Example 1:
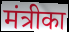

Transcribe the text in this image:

मंत्रीका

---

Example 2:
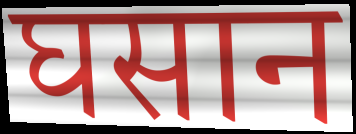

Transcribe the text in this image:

घसान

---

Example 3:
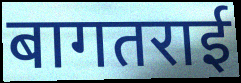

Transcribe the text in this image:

बागतराई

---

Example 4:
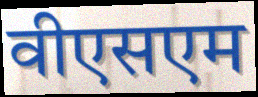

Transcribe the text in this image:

वीएसएम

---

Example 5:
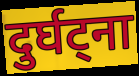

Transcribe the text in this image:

दुर्घट्ना